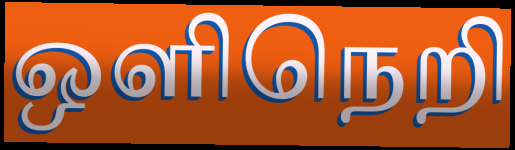
ஒளிநெறி